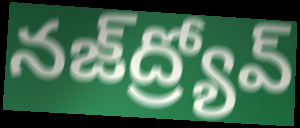
నజ్‌ద్ర్యోవ్